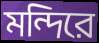
মন্দিরে